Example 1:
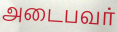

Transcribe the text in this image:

அடைபவர்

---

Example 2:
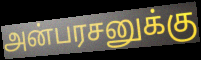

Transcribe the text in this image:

அன்பரசனுக்கு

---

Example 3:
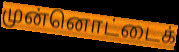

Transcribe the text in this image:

முன்னொட்டைக்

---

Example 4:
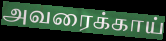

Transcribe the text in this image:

அவரைக்காய்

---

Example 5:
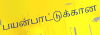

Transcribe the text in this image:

பயன்பாட்டுக்கான